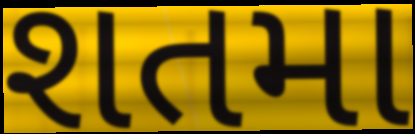
શતમા